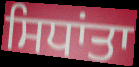
ਸਿਧਾਂਤਾ